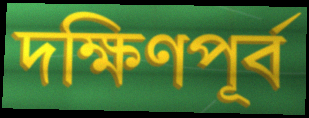
দক্ষিণপূর্ব